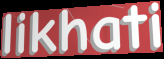
likhati